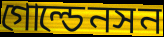
গোল্ডেনসন